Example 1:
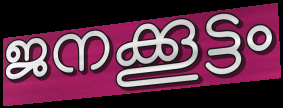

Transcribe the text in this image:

ജനക്കൂട്ടം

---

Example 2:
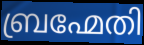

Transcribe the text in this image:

ബ്രഹ്മേതി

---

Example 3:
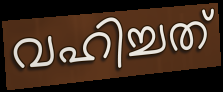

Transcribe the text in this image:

വഹിച്ചത്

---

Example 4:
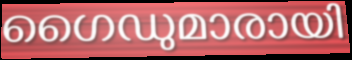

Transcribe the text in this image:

ഗൈഡുമാരായി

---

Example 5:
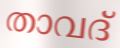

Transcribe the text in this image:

താവദ്